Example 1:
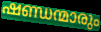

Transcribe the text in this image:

ഷണ്ഡന്മാരും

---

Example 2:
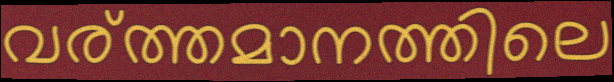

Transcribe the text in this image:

വര്ത്തമാനത്തിലെ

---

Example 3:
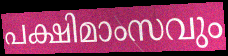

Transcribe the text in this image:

പക്ഷിമാംസവും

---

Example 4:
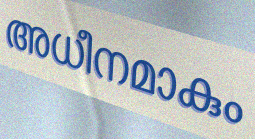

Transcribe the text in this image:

അധീനമാകും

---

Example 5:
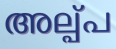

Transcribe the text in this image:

അല്പ്പ